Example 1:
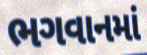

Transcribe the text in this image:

ભગવાનમાં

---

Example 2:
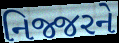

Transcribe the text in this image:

નિજ્જરને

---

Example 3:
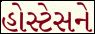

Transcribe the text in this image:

હોસ્ટેસને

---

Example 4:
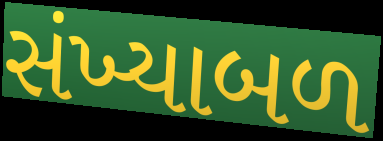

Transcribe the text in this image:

સંખ્યાબળ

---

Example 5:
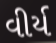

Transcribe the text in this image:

વીર્ય